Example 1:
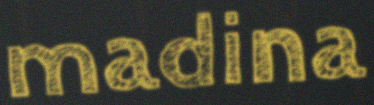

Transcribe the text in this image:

madina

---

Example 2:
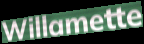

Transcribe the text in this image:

Willamette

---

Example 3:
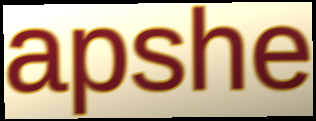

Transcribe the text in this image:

apshe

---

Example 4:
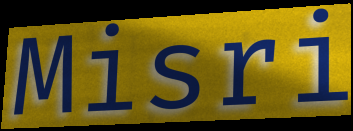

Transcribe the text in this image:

Misri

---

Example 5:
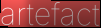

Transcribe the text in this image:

artefact